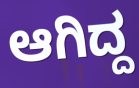
ಆಗಿದ್ದ